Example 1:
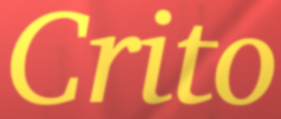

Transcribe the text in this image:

Crito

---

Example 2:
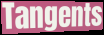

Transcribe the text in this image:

Tangents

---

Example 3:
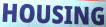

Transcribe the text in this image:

HOUSING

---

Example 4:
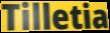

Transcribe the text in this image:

Tilletia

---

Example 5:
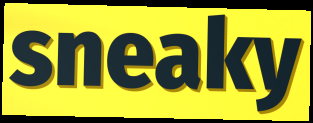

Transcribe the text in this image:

sneaky